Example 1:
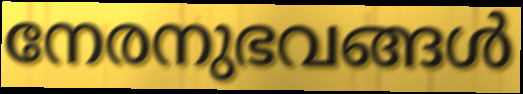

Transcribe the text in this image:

നേരനുഭവങ്ങൾ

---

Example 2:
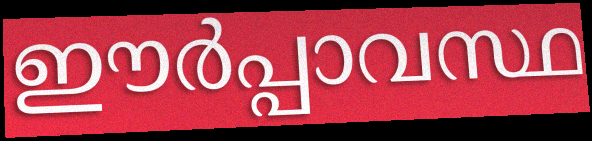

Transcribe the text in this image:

ഈർപ്പാവസ്ഥ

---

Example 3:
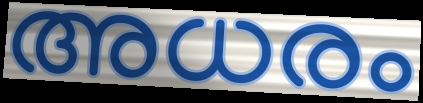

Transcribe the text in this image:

അധരം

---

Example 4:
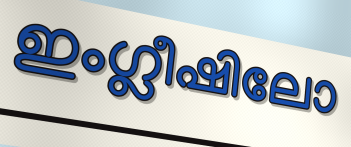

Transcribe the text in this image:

ഇംഗ്ലീഷിലോ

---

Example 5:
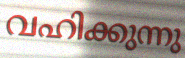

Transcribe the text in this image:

വഹിക്കുന്നു